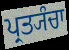
ਪ੍ਰਤ੍ਯੰਚਾ